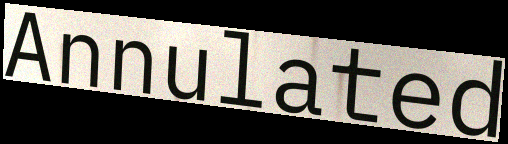
Annulated